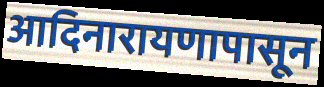
आदिनारायणापासून